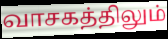
வாசகத்திலும்